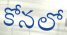
కోనలో